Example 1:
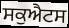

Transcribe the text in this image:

ਸਕੁਐਟਸ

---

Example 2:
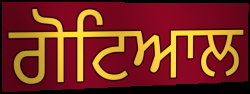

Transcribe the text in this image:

ਗੋਟਿਆਲ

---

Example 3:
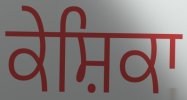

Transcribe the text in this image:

ਕੇਸ਼ਿਕਾ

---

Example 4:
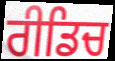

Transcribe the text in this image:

ਰੀਡਿਚ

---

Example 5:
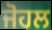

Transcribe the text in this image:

ਜੋਹਲ